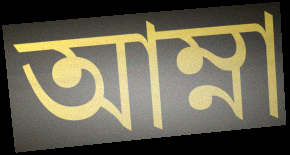
আম্না